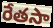
రేతసా